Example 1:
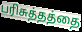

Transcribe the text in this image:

பரிசுத்தத்தை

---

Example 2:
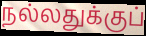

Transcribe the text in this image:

நல்லதுக்குப்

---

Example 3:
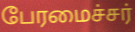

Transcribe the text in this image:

பேரமைச்சர்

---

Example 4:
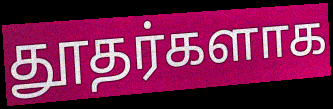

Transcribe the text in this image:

தூதர்களாக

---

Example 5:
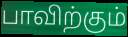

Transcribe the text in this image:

பாவிற்கும்